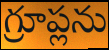
గ్రూప్లను